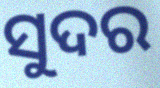
ସୁଦର